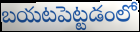
బయటపెట్టడంలో